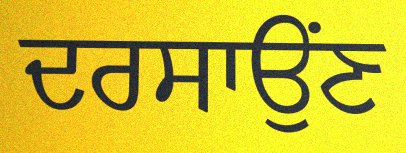
ਦਰਸਾਉਂਣ